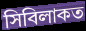
সিবিলাকত